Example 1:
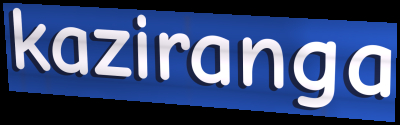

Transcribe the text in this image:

kaziranga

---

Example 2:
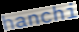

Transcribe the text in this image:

hanchi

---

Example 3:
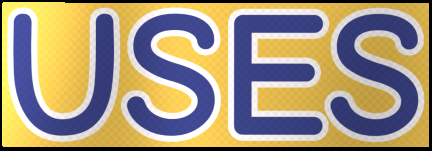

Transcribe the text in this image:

USES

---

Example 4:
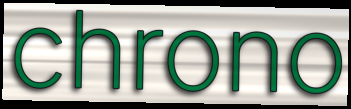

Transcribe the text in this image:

chrono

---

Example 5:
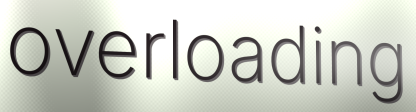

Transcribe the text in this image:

overloading